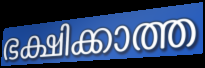
ഭക്ഷിക്കാത്ത